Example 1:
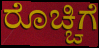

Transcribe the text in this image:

ರೊಚ್ಚಿಗೆ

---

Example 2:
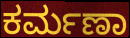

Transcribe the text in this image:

ಕರ್ಮಣಾ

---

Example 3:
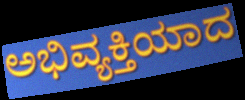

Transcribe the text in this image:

ಅಭಿವ್ಯಕ್ತಿಯಾದ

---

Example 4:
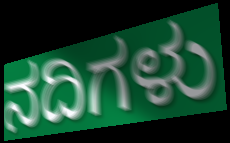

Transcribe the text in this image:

ನದಿಗಳು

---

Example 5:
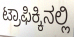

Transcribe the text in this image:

ಟ್ರಾಫಿಕ್ಕಿನಲ್ಲಿ